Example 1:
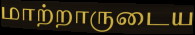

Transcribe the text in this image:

மாற்றாருடைய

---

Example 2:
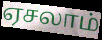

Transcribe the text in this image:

ஏசலாம்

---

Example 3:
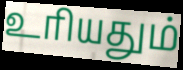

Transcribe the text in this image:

உரியதும்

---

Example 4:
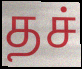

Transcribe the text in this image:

தச்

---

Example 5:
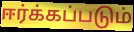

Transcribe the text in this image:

ஈர்க்கப்படும்